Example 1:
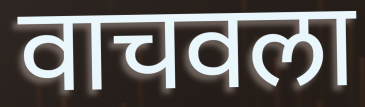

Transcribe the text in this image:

वाचवला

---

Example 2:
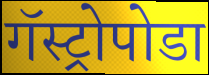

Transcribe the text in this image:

गॅस्ट्रोपोडा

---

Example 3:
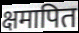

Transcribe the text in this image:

क्षमापित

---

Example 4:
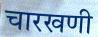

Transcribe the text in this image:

चारखणी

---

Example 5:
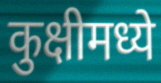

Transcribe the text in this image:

कुक्षीमध्ये